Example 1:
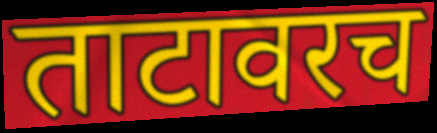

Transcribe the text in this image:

ताटावरच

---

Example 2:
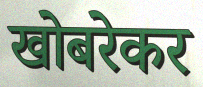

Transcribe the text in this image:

खोबरेकर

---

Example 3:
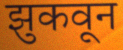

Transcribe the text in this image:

झुकवून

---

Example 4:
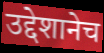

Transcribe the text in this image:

उद्देशानेच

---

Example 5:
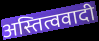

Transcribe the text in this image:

अस्तित्ववादी